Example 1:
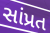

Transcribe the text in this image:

સાંપ્રત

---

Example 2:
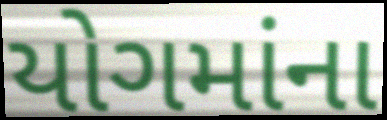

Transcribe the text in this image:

યોગમાંના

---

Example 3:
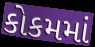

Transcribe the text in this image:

કોકમમાં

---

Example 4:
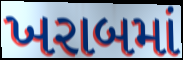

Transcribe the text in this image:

ખરાબમાં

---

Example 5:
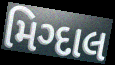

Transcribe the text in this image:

મિગ્દાલ